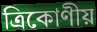
ত্ৰিকোণীয়